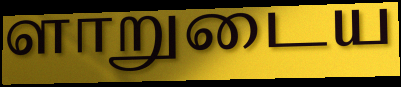
ளாறுடைய